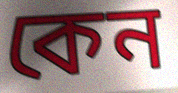
কেন